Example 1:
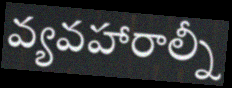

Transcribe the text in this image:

వ్యవహారాల్నీ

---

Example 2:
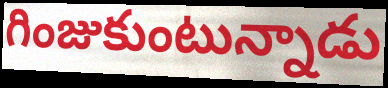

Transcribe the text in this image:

గింజుకుంటున్నాడు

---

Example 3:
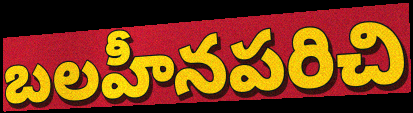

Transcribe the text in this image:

బలహీనపరిచి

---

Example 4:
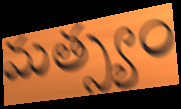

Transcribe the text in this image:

మత్స్యం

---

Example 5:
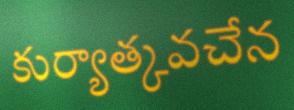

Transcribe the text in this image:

కుర్యాత్కవచేన